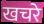
खचरे